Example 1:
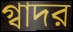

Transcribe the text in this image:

গ্বাদর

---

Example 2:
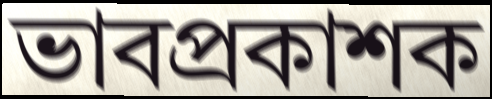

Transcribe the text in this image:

ভাবপ্রকাশক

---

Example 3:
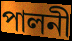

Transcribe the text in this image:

পালনী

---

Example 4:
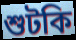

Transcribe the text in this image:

শুটকি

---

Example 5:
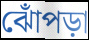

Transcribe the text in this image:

ঝোঁপড়া